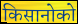
किसानोको